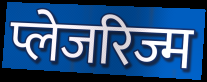
प्लेजरिज्म